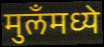
मुलँमध्ये